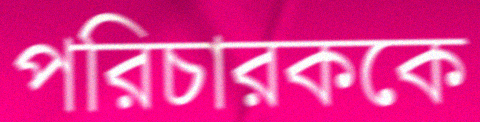
পরিচারককে